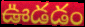
ఊడడం